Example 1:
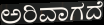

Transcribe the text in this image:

ಅರಿವಾಗದೆ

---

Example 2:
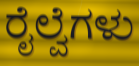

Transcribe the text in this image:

ರೈಲ್ವೆಗಳು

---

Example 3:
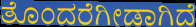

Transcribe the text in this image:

ತೊಂದರೆಗೀಡಾಗಿದೆ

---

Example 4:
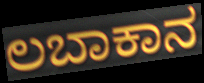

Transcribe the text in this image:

ಲಬಾಕಾನ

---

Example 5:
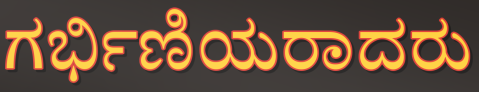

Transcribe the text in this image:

ಗರ್ಭಿಣಿಯರಾದರು